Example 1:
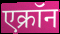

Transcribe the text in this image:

एक्रॉन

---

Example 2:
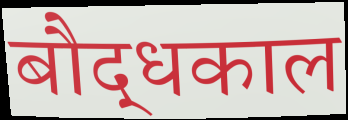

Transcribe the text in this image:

बौद्धकाल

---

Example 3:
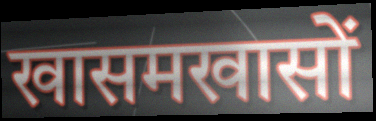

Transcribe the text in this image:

खासमखासों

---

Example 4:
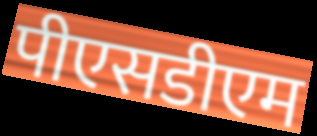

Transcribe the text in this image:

पीएसडीएम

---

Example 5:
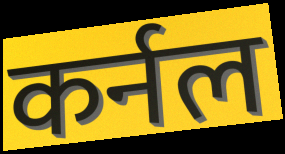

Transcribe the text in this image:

कर्नल